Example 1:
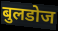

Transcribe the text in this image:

बुलडोज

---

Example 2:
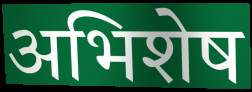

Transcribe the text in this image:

अभिशेष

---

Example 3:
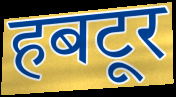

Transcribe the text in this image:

हबटूर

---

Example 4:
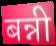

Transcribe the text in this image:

बन्नी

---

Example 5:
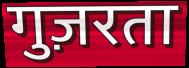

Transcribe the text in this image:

गुज़रता